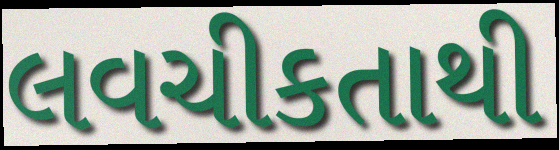
લવચીકતાથી